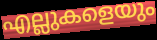
എല്ലുകളെയും